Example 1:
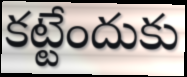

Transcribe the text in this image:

కట్టేందుకు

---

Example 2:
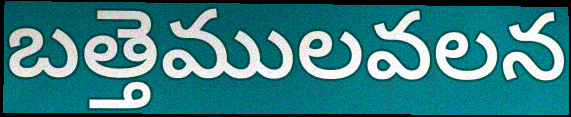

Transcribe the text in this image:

బత్తెములవలన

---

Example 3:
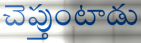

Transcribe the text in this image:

చెప్తుంటాడు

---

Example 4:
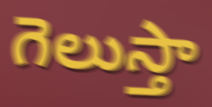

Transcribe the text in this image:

గెలుస్తా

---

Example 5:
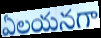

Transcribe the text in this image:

ఏలయనగా